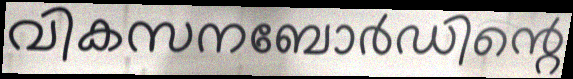
വികസനബോർഡിന്റെ